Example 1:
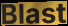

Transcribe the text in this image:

Blast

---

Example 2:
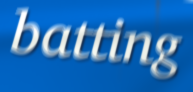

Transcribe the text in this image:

batting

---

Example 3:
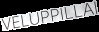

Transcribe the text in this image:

VELUPPILLAI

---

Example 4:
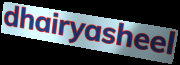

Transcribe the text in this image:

dhairyasheel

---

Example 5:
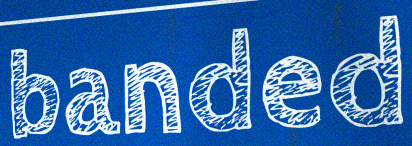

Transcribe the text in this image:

banded